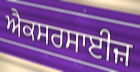
ਐਕਸਰਸਾਈਜ਼